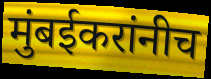
मुंबईकरांनीच